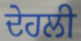
ਦੇਹਲੀ